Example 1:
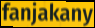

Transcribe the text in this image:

fanjakany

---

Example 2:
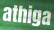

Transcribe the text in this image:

athiga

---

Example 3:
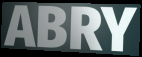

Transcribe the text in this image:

ABRY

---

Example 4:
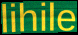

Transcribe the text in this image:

lihile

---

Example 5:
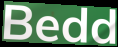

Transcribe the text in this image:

Bedd